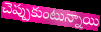
చెప్పుకుంటున్నాయి